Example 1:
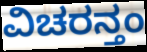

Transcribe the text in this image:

ವಿಚರನ್ತಂ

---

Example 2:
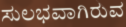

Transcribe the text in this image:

ಸುಲಭವಾಗಿರುವ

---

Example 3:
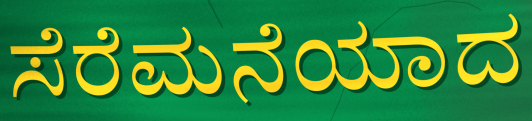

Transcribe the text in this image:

ಸೆರೆಮನೆಯಾದ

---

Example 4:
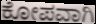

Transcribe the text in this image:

ಕೋಪವಾಗಿ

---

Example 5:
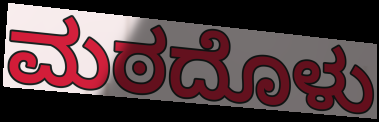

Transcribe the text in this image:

ಮಠದೊಳು